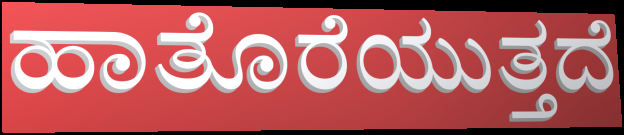
ಹಾತೊರೆಯುತ್ತದೆ